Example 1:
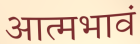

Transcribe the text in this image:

आत्मभावं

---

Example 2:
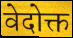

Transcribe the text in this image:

वेदोक्त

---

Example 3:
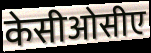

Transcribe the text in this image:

केसीओसीए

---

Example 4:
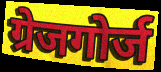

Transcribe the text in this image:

ग्रेजगोर्ज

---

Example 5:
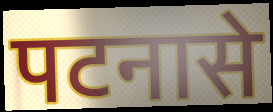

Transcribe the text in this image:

पटनासे